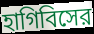
হাগিবিসের